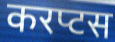
करप्टस